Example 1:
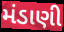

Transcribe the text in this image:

મંડાણી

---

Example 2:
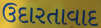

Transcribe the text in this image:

ઉદારતાવાદ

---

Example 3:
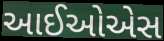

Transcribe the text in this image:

આઈઓએસ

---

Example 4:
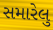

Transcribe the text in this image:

સમારેલુ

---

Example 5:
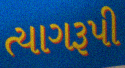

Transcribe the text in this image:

ત્યાગરૂપી